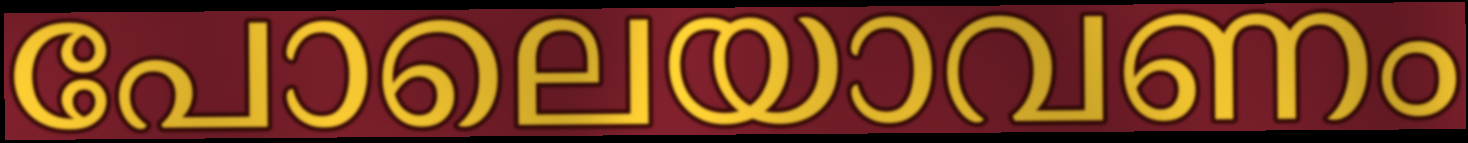
പോലെയാവണം